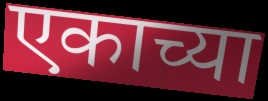
एकाच्या